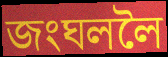
জংঘললৈ